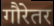
गौरेतर